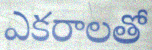
ఎకరాలతో